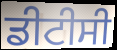
ਡੀਟੀਸੀ